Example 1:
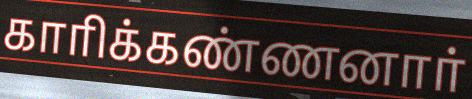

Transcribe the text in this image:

காரிக்கண்ணனார்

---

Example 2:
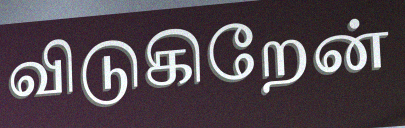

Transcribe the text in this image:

விடுகிறேன்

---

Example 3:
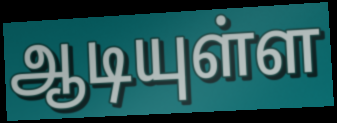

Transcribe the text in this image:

ஆடியுள்ள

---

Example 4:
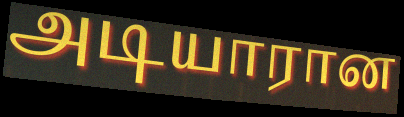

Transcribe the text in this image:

அடியாரான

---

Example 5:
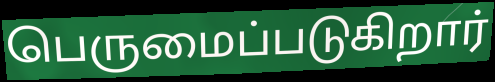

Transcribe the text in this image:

பெருமைப்படுகிறார்